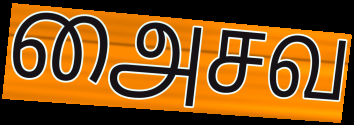
அைசவ